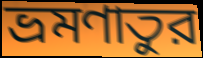
ভ্রমণাতুর